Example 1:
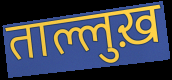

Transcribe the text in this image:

ताल्लुख़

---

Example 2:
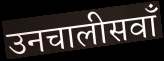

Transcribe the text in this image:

उनचालीसवाँ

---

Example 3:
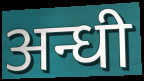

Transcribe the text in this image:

अन्धी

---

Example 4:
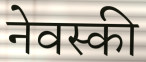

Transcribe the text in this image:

नेवस्की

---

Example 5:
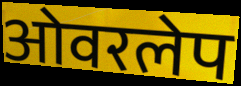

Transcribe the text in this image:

ओवरलेप